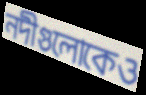
নদীগুলোকেও